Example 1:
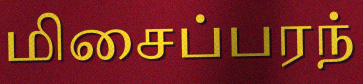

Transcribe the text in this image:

மிசைப்பரந்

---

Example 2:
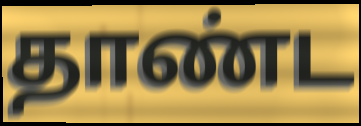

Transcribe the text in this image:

தாண்ட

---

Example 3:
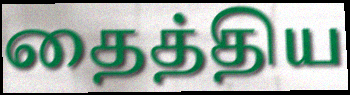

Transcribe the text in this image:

தைத்திய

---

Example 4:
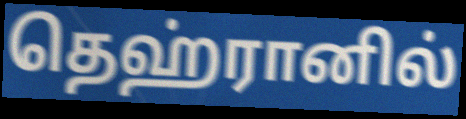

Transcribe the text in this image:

தெஹ்ரானில்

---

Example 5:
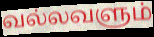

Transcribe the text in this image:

வல்லவளும்